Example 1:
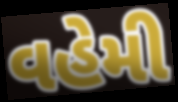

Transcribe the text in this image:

વહેમી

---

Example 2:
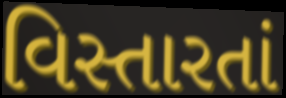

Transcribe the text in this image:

વિસ્તારતાં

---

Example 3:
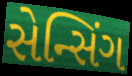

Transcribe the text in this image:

સેન્સિંગ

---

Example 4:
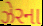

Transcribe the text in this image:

ઝેરના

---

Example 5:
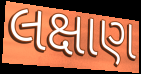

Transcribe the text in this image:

લક્ષાણ